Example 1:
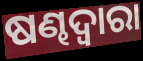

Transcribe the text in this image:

ଷଣ୍ଢଦ୍ୱାରା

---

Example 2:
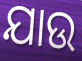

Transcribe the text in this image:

ଯାଉ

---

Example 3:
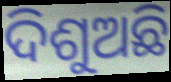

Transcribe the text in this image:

ଦିଶୁଅଛି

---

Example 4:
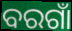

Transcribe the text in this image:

ବରଗାଁ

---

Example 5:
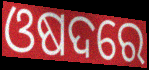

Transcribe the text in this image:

ଓଷଦରେ